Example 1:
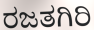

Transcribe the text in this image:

ರಜತಗಿರಿ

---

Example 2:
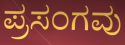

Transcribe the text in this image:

ಪ್ರಸಂಗವು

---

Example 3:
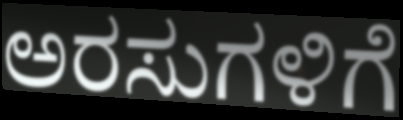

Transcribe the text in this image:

ಅರಸುಗಳಿಗೆ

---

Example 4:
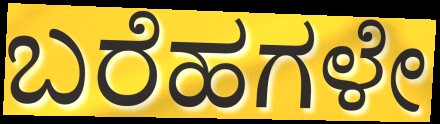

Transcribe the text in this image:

ಬರೆಹಗಳೇ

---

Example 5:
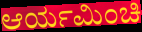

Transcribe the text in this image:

ಆರ್ಯಮಿಂಚಿ